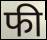
फी